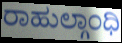
ರಾಹುಲ್ಗಾಂಧಿ